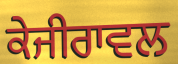
ਕੇਜੀਰਾਵਲ